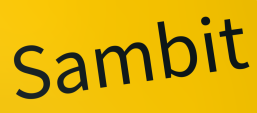
Sambit